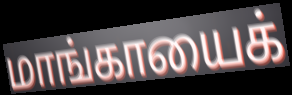
மாங்காயைக்